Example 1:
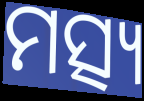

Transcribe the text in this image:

ମତ୍ସ୍ୟ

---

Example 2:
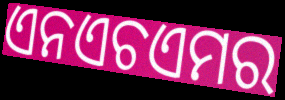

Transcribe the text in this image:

ଏନଏଚଏମର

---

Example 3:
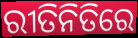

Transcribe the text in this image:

ରୀତିନିତିରେ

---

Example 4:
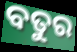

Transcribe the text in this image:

ବତୁର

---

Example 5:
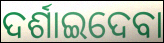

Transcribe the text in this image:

ଦର୍ଶାଇଦେବା